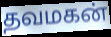
தவமகன்